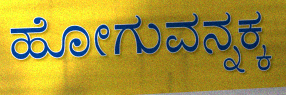
ಹೋಗುವನ್ನಕ್ಕ